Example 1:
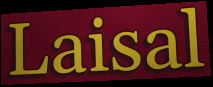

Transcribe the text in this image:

Laisal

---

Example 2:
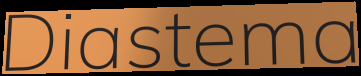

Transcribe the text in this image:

Diastema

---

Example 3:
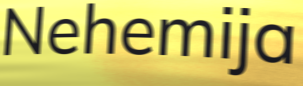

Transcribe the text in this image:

Nehemija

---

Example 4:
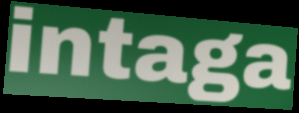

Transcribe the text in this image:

intaga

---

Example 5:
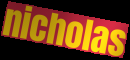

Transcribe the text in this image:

nicholas